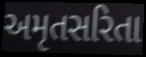
અમૃતસરિતા